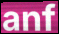
anf